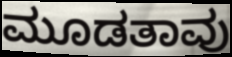
ಮೂಡತಾವು